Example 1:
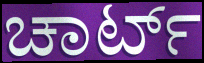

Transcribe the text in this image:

ಚಾರ್ಟ್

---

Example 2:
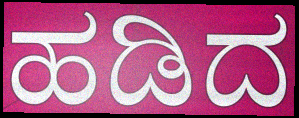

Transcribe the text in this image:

ಹಡಿದ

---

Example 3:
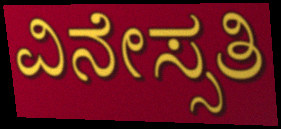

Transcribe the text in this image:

ವಿನೇಸ್ಸತಿ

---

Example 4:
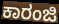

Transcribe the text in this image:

ಕಾರಂಜಿ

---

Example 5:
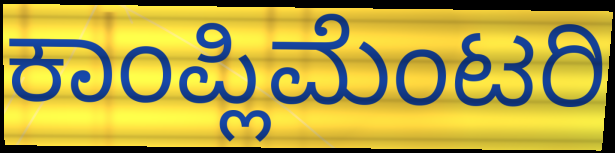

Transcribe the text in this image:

ಕಾಂಪ್ಲಿಮೆಂಟರಿ